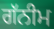
ਗੱਨੀਮ